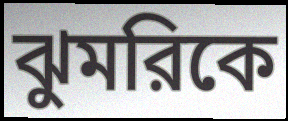
ঝুমরিকে